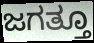
ಜಗತ್ತೂ